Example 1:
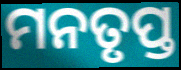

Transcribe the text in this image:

ମନତୃପ୍ତ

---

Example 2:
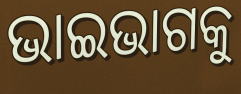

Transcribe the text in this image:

ଭାଇଭାଗକୁ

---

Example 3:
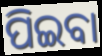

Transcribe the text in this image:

ପିଇବା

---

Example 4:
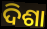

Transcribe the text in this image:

ଦିଶା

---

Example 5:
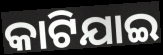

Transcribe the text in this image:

କାଟିଯାଇ